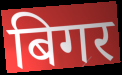
बिगर